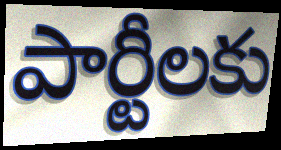
పార్టీలకు